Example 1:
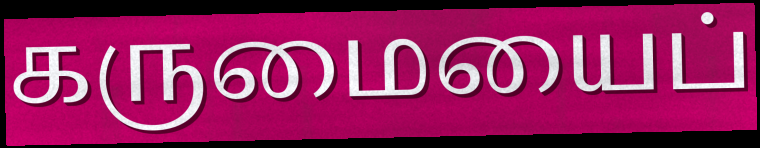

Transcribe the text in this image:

கருமையைப்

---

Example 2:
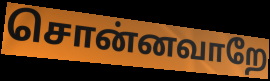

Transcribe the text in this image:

சொன்னவாறே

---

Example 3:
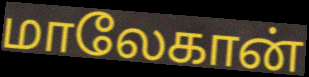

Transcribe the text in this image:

மாலேகான்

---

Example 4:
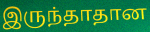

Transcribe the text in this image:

இருந்தாதான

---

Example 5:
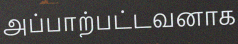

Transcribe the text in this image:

அப்பாற்பட்டவனாக